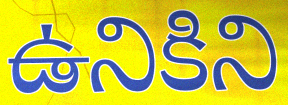
ఉనికిని